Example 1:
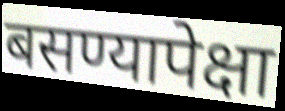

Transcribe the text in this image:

बसण्यापेक्षा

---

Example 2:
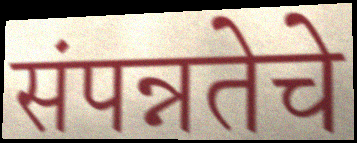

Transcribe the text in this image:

संपन्नतेचे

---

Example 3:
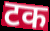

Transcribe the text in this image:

टक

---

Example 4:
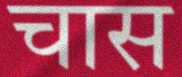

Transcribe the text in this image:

चास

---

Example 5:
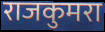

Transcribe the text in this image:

राजकुमरा